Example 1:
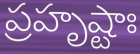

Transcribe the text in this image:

ప్రహృష్టాః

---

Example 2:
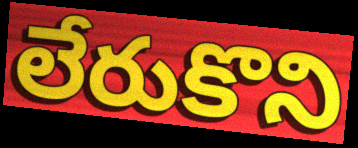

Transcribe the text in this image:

లేరుకొని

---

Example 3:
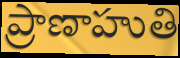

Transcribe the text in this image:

ప్రాణాహుతి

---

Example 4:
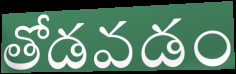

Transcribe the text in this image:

తోడవడం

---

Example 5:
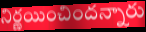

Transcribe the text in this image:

నిర్ణయించిందన్నారు